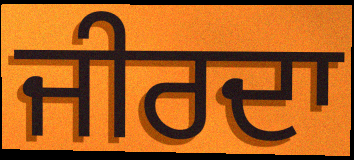
ਜੀਰਦਾ